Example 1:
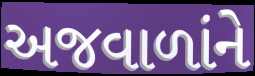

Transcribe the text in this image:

અજવાળાંને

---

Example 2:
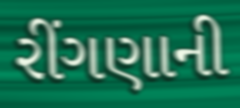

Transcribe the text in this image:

રીંગણાની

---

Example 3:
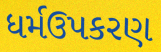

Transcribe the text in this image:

ધર્મઉપકરણ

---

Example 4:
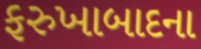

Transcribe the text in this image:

ફરુખાબાદના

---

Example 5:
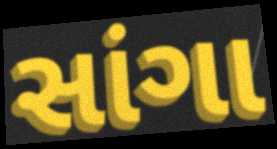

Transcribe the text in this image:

સાંગા